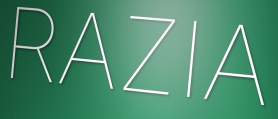
RAZIA